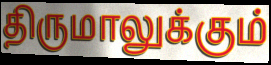
திருமாலுக்கும்